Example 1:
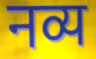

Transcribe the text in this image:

नव्य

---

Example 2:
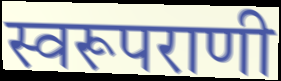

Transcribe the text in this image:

स्वरूपराणी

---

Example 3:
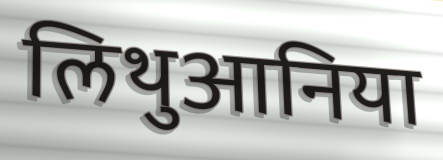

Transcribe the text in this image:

लिथुआनिया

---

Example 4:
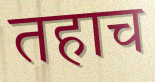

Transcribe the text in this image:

तहाच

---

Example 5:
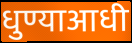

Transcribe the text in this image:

धुण्याआधी